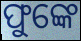
ଫୁଙ୍କେ